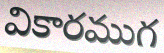
వికారముగ